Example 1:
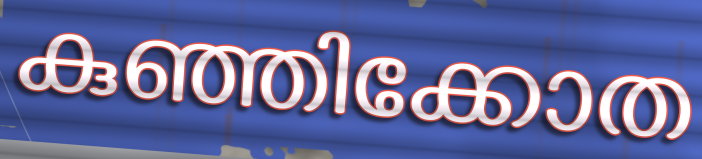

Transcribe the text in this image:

കുഞ്ഞിക്കോത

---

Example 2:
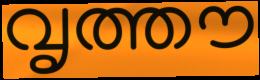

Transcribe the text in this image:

വൃത്തൗ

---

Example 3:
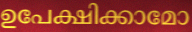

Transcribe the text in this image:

ഉപേക്ഷിക്കാമോ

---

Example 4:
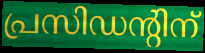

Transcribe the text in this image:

പ്രസിഡന്റിന്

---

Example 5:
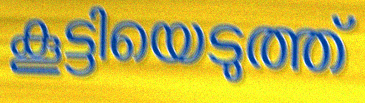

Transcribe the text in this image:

കൂട്ടിയെടുത്ത്